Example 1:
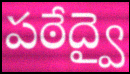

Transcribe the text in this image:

పఠేద్వై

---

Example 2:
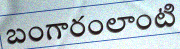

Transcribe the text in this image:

బంగారంలాంటి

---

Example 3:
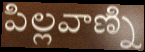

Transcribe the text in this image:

పిల్లవాణ్ని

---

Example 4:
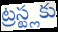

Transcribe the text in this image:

ట్రస్ట్లకు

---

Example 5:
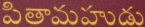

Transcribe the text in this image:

పితామహుడు